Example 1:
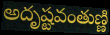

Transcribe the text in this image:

అదృష్టవంతుణ్ణి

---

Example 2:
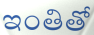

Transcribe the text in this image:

ఇంతితో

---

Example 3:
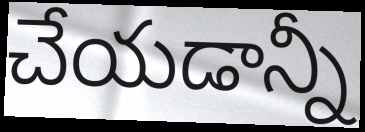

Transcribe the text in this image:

చేయడాన్నీ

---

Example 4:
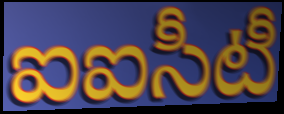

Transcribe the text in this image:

ఐఐసీటీ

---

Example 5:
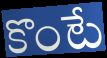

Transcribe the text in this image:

కొంటే